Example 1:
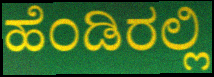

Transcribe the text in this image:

ಹೆಂಡಿರಲ್ಲಿ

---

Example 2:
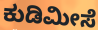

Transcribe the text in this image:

ಕುಡಿಮೀಸೆ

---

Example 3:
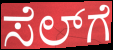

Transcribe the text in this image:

ಸೆಲ್‍ಗೆ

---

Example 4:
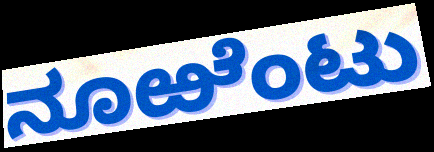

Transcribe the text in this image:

ನೂಱೆಂಟು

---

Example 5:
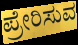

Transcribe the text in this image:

ಪ್ರೇರಿಸುವ